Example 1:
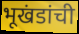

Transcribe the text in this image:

भूखंडांची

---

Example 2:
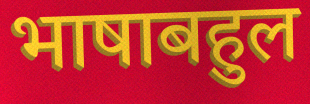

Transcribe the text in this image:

भाषाबहुल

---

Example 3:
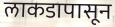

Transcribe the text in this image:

लाकडापासून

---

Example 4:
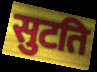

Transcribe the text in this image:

सुटति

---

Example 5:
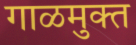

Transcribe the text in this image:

गाळमुक्त